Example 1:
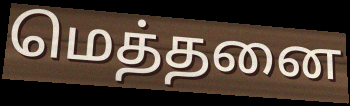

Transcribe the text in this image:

மெத்தனை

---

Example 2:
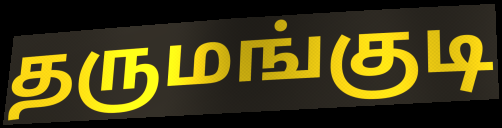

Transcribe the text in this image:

தருமங்குடி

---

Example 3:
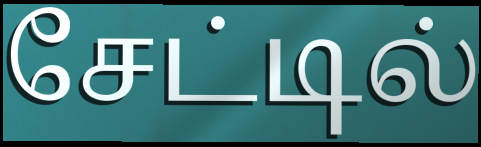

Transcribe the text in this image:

சேட்டில்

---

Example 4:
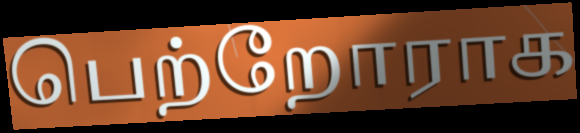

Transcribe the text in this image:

பெற்றோராக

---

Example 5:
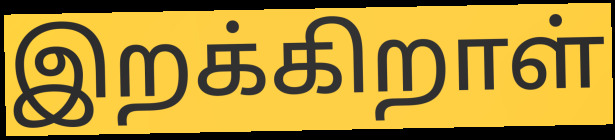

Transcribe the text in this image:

இறக்கிறாள்